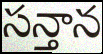
సన్తాన